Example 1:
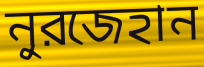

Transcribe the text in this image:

নুরজেহান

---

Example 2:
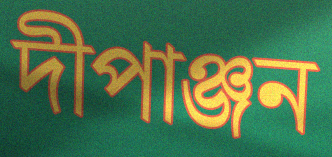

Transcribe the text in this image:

দীপাঞ্জন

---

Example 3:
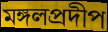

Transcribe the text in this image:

মঙ্গলপ্রদীপ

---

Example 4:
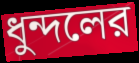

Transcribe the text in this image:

ধুন্দলের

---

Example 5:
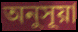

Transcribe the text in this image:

অনুসূয়া